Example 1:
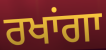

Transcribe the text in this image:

ਰਖਾਂਗਾ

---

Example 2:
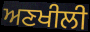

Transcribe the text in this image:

ਅਣਖੀਲੀ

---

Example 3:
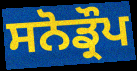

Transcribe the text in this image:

ਸਨੋਡ੍ਰੌਪ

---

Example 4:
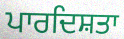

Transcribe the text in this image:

ਪਾਰਦਿਸ਼ਤਾ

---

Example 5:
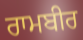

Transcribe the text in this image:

ਰਾਮਬੀਰ